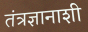
तंत्रज्ञानाशी